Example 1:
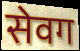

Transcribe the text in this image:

सेवग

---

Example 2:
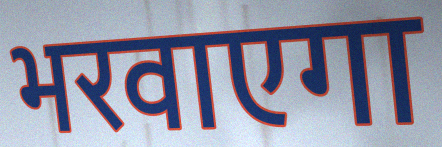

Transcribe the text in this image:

भरवाएगा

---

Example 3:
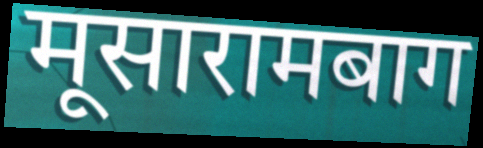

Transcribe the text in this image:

मूसारामबाग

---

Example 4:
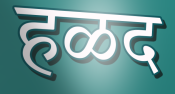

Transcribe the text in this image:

हळद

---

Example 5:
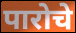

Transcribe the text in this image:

पारोचे